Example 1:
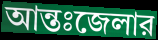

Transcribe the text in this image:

আন্তঃজেলার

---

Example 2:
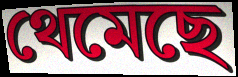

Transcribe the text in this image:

থেমেছে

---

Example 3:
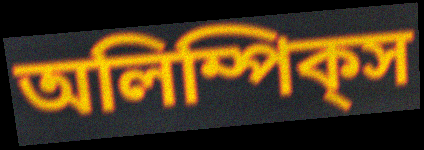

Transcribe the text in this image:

অলিম্পিক্‌স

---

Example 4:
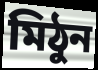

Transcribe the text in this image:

মিঠুন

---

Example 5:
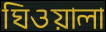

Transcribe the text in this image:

ঘিওয়ালা